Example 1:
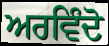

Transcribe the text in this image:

ਅਰਵਿੰਦੋ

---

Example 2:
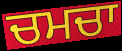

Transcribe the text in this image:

ਚਮਚਾ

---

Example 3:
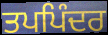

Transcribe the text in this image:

ਤਪਪਿੰਦਰ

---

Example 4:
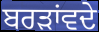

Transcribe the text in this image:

ਬਰੜਾਂਵਦੇ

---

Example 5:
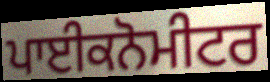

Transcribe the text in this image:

ਪਾਈਕਨੋਮੀਟਰ